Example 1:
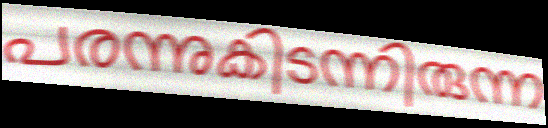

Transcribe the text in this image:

പരന്നുകിടന്നിരുന്ന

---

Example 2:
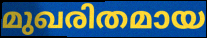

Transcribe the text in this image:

മുഖരിതമായ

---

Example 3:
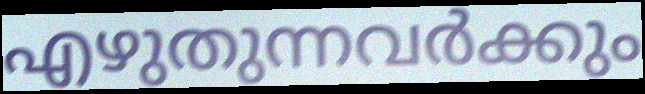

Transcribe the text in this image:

എഴുതുന്നവർക്കും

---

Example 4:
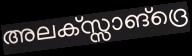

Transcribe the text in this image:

അലക്സ്സാങ്ദ്രെ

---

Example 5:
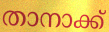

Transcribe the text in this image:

താനാക്ക്